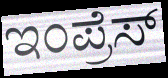
ಇಂಪ್ರೆಸ್